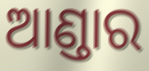
ଆଣ୍ଡାର